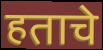
हताचे